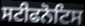
ਸਟੀਫਨੋਟਿਸ